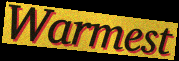
Warmest